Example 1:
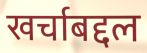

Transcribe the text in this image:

खर्चाबद्दल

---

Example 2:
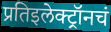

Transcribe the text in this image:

प्रतिइलेक्ट्रॉनचं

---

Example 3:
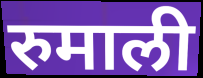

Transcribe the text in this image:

रुमाली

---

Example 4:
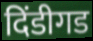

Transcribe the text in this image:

दिंडीगड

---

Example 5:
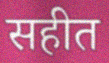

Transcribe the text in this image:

सहीत